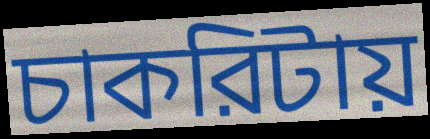
চাকরিটায়